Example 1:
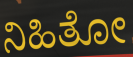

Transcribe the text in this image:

ನಿಹಿತೋ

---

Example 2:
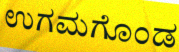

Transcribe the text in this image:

ಉಗಮಗೊಂಡ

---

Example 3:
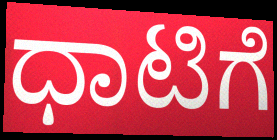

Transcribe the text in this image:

ಧಾಟಿಗೆ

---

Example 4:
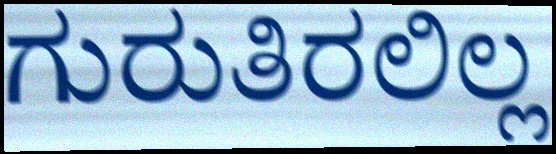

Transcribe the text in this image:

ಗುರುತಿರಲಿಲ್ಲ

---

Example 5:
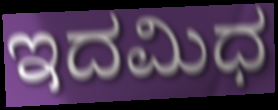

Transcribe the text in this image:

ಇದಮಿಧ